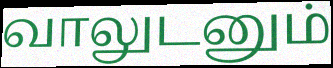
வாலுடனும்